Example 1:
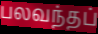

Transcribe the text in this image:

பலவந்தப்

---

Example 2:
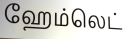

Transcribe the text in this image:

ஹேம்லெட்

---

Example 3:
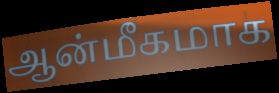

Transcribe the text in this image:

ஆன்மீகமாக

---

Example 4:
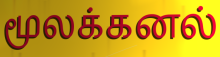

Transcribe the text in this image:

மூலக்கனல்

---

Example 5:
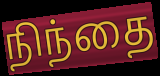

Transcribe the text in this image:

நிந்தை